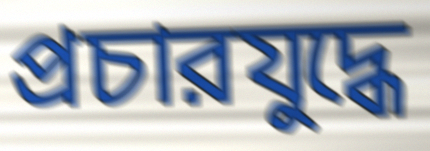
প্রচারযুদ্ধে